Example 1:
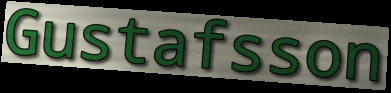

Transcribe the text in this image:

Gustafsson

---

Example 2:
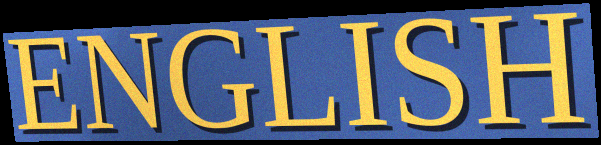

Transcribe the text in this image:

ENGLISH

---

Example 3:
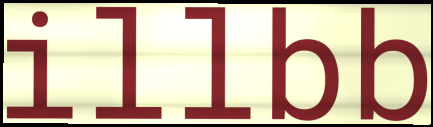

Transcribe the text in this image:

illbb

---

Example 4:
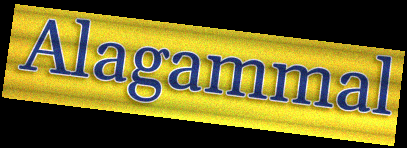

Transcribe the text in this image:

Alagammal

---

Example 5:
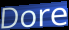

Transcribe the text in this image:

Dore